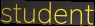
student